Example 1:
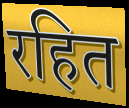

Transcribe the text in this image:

रहित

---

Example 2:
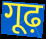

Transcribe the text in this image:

गूढ़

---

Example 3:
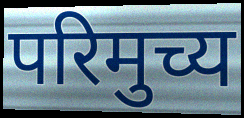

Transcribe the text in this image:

परिमुच्य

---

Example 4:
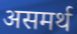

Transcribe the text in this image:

असमर्थ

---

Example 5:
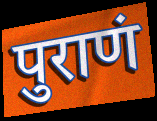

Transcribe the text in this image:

पुराणं